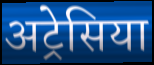
अट्रेसिया